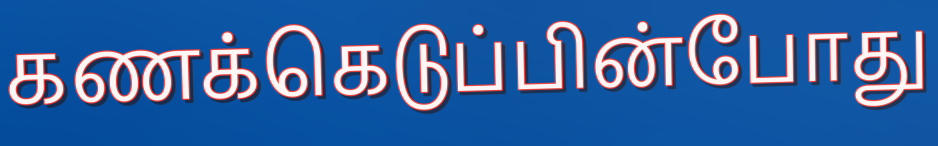
கணக்கெடுப்பின்போது